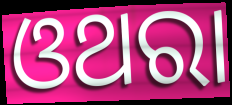
ଓଥରା